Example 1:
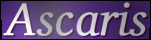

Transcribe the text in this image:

Ascaris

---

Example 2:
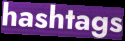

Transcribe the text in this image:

hashtags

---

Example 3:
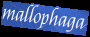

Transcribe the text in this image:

mallophaga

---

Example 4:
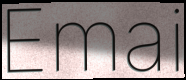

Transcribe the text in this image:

Emai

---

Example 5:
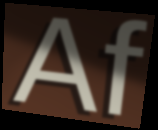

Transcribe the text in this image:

Af